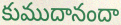
కుముదానందా